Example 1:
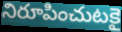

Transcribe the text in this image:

నిరూపించుటకై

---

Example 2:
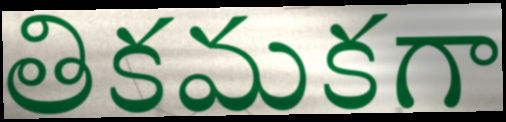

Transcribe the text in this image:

తికమకగా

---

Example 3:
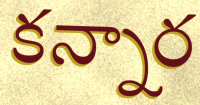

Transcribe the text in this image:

కన్నార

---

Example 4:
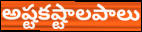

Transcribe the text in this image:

అష్టకష్టాలపాలు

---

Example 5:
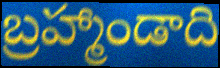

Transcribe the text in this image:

బ్రహ్మాండాది